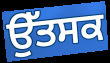
ਉੱਤਸਕ